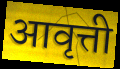
आवृत्ती